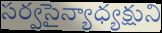
సర్వసైన్యాధ్యక్షుని